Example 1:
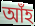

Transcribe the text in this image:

আঁহ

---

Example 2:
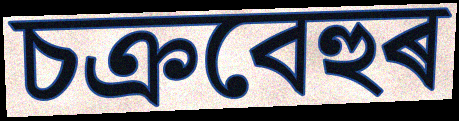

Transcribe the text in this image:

চক্ৰবেহুৰ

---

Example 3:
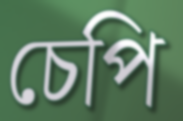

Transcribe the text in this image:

চেপি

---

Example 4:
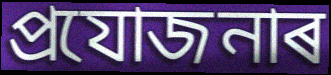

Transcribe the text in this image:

প্ৰযোজনাৰ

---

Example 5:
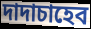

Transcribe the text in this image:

দাদাচাহেব